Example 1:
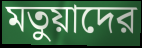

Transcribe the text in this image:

মতুয়াদের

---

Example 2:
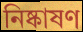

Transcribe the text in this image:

নিষ্কাষণ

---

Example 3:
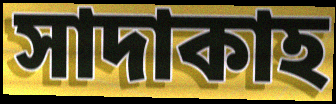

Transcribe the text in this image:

সাদাকাহ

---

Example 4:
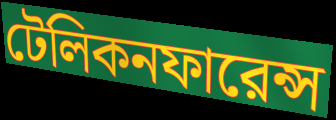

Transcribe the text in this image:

টেলিকনফারেন্স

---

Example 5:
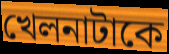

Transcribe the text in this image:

খেলনাটাকে